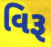
વિરૂ